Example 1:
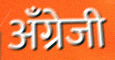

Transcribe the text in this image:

अँग्रेजी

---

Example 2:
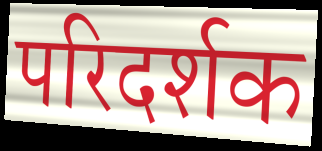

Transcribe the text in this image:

परिदर्शक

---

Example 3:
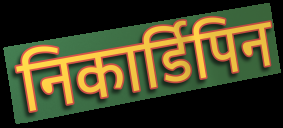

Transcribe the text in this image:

निकार्डिपिन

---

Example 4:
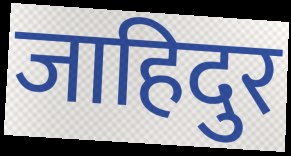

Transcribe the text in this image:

जाहिदुर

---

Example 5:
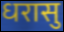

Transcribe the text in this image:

धरासु